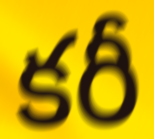
కరీ